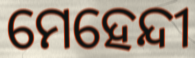
ମେହେନ୍ଦୀ